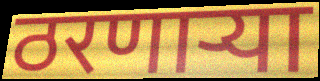
ठरणाऱ्या